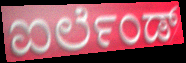
ಐರ್ಲೆಂಡ್